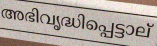
അഭിവൃദ്ധിപ്പെട്ടാല്